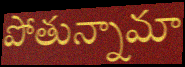
పోతున్నామా